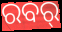
ରବର୍